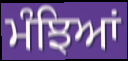
ਮੰਝਿਆਂ